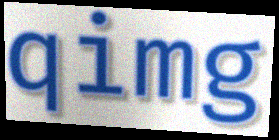
qimg